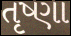
તૃષ્ણા